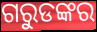
ଗରୁଡଙ୍କର